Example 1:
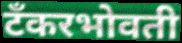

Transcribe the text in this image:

टँकरभोवती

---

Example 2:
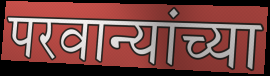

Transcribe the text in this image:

परवान्यांच्या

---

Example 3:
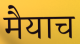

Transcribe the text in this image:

मैयाच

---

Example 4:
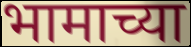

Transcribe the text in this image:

भामाच्या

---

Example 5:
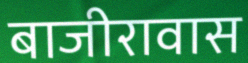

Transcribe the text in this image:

बाजीरावास